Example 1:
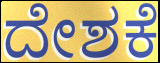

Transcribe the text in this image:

ದೇಶಕೆ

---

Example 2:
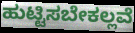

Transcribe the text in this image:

ಹುಟ್ಟಿಸಬೇಕಲ್ಲವೆ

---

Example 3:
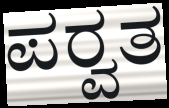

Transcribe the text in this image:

ಪರ್‍ವತ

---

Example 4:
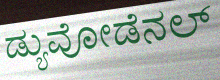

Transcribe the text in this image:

ಡ್ಯುವೋಡೆನಲ್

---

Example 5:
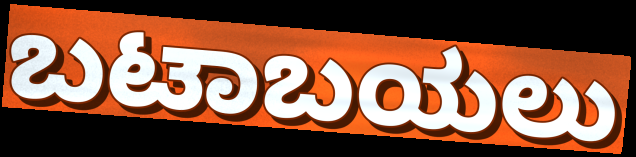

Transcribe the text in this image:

ಬಟಾಬಯಲು